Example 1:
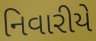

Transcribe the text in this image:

નિવારીયે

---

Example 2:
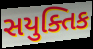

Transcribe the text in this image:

સયુક્તિક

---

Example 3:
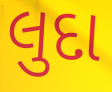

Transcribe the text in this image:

લુદા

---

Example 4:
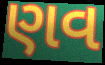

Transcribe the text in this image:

ણવ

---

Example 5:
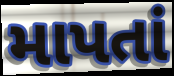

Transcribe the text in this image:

માપતાં